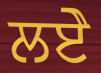
ਲਏੇ